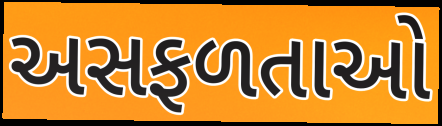
અસફળતાઓ